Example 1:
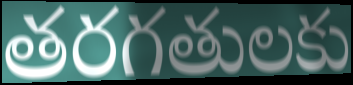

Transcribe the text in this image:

తరగతులకు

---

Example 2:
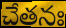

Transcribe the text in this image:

చేతనః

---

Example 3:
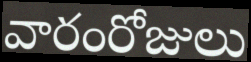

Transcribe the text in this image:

వారంరోజులు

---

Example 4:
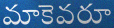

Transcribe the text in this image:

మాకెవరూ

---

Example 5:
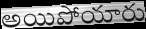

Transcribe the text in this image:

అయిపోయారు